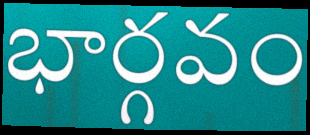
భార్గవం